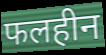
फलहीन